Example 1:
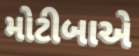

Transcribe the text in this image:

મોટીબાએ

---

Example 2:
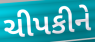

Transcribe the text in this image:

ચીપકીને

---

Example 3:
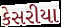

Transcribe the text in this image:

કેસરીયા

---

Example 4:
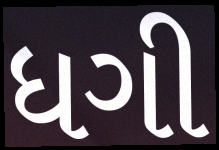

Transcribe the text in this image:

ધગી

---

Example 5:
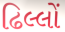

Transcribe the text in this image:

ઢિલ્લોં